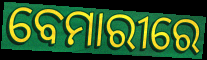
ବେମାରୀରେ